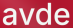
avde